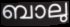
ബാലു